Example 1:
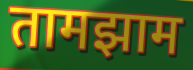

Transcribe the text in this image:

तामझाम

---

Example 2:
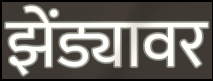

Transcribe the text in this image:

झेंड्यावर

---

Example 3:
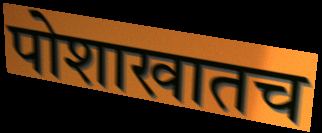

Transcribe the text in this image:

पोशाखातच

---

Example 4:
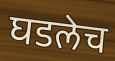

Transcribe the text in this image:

घडलेच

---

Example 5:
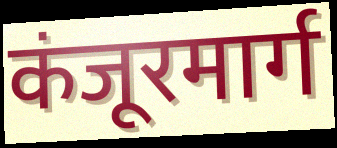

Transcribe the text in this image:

कंजूरमार्ग